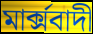
মার্ক্সবাদী